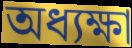
অধ্যক্ষা